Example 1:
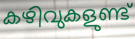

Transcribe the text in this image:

കഴിവുകളുണ്ട്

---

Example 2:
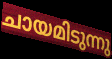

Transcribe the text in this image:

ചായമിടുന്നു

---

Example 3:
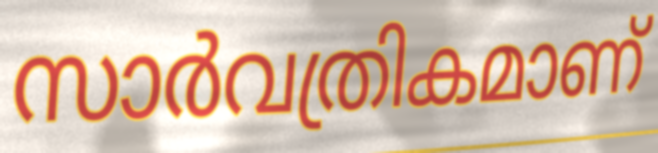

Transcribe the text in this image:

സാർവത്രികമാണ്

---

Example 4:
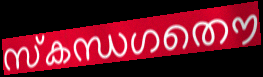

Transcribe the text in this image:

സ്കന്ധഗതൌ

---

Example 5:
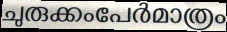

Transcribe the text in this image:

ചുരുക്കംപേർമാത്രം